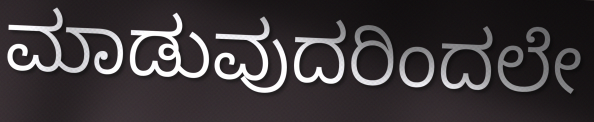
ಮಾಡುವುದರಿಂದಲೇ